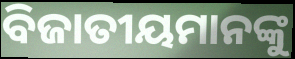
ବିଜାତୀୟମାନଙ୍କୁ